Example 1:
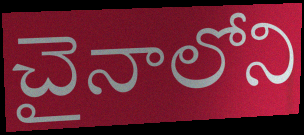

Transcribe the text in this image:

చైనాలోని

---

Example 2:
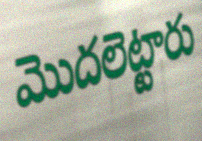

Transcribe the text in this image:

మొదలెట్టారు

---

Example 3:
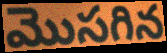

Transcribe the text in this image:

మొసగిన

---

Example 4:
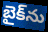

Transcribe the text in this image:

బైక్‌ను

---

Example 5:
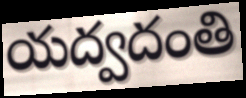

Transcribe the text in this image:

యద్వదంతి